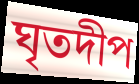
ঘৃতদীপ